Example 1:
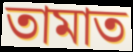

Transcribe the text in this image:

তামাত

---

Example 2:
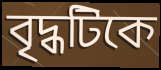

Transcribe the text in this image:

বৃদ্ধটিকে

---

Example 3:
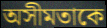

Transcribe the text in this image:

অসীমতাকে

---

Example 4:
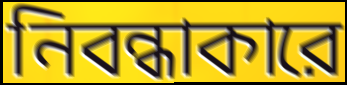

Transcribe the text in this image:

নিবন্ধাকারে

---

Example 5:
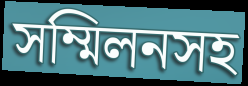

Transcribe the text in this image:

সম্মিলনসহ